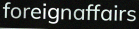
foreignaffairs